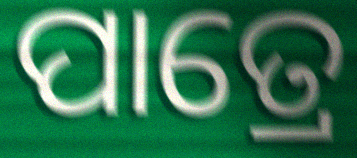
ପାତ୍ରେ